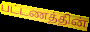
பட்டணத்தின்